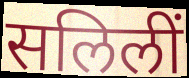
सलिलीं